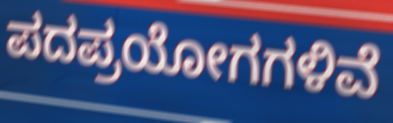
ಪದಪ್ರಯೋಗಗಳಿವೆ